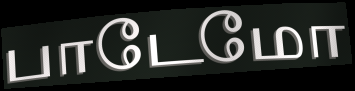
பாடேமோ